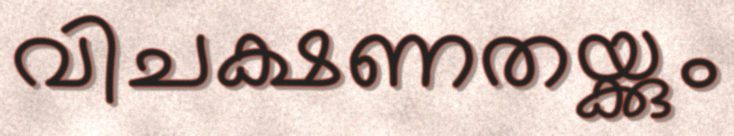
വിചക്ഷണതയ്ക്കും